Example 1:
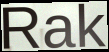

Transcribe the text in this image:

Rak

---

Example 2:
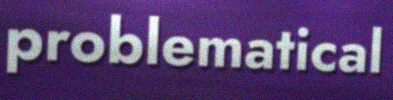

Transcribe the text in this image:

problematical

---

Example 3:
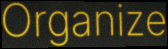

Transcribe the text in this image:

Organize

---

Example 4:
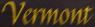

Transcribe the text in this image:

Vermont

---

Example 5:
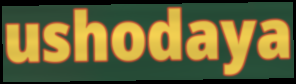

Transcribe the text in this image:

ushodaya